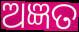
ଅଜ୍ଞତ